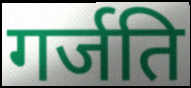
गर्जति